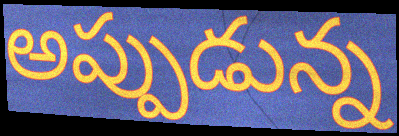
అప్పుడున్న